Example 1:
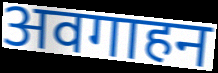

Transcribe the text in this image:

अवगाहन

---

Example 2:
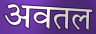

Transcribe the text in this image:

अवतल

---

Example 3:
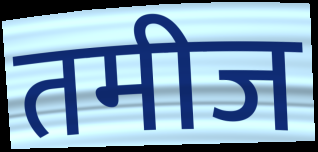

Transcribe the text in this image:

तमीज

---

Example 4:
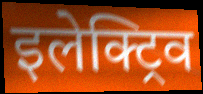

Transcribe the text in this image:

इलेक्ट्रिव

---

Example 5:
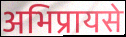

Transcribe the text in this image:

अभिप्रायसे